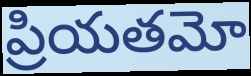
ప్రియతమో